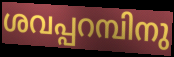
ശവപ്പറമ്പിനു